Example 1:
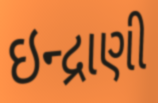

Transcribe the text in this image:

ઇન્દ્રાણી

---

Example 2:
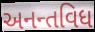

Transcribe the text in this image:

અનન્તવિધ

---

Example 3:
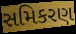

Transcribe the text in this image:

સમિકરણ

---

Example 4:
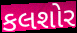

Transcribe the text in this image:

કલશોર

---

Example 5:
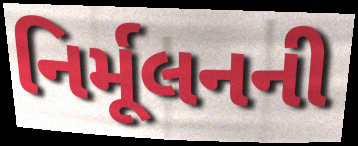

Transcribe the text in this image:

નિર્મૂલનની